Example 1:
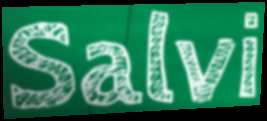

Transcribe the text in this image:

Salvi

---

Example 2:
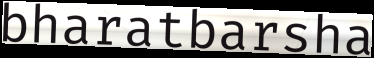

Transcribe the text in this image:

bharatbarsha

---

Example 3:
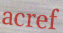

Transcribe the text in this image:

acref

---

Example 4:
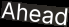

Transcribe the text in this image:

Ahead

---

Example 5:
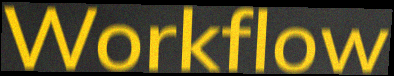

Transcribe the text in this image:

Workflow